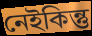
নেইকিন্তু